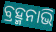
ବ୍ରହ୍ମନାଭି